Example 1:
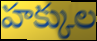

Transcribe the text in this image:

హక్కుల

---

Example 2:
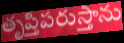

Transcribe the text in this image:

తృప్తిపరుస్తాను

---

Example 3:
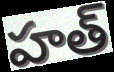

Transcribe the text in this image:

హత్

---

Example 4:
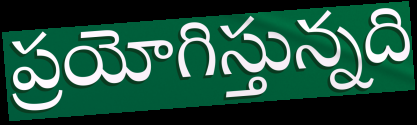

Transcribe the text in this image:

ప్రయోగిస్తున్నది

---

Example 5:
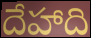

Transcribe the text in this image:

దేహాది